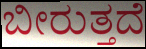
ಬೀರುತ್ತದೆ